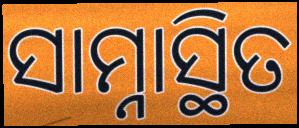
ସାମ୍ନାସ୍ଥିତ